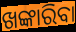
ଖଙ୍କାରିବା